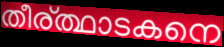
തീര്ത്ഥാടകനെ